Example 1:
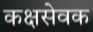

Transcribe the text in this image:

कक्षसेवक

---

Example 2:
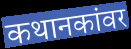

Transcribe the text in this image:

कथानकांवर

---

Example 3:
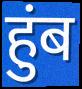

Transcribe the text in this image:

हुंब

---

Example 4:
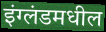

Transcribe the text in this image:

इंग्‍लंडमधील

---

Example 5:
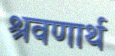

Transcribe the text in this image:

श्रवणार्थ